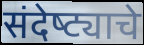
संदेष्ट्याचे